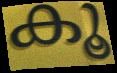
കൂ